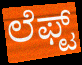
ಲೆಫ್ಟ್